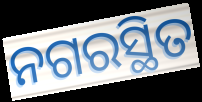
ନଗରସ୍ଥିତ